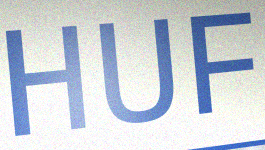
HUF